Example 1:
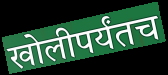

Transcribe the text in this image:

खोलीपर्यंतच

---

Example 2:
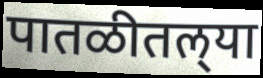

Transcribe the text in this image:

पातळीतल्या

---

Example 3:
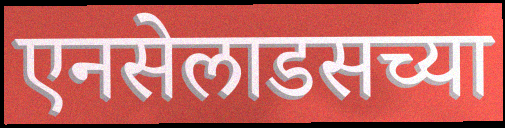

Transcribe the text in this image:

एनसेलाडसच्या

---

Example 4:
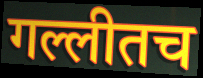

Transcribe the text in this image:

गल्लीतच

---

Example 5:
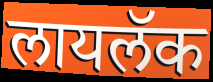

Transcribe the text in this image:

लायलॅक